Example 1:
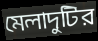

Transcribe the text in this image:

মেলাদুটির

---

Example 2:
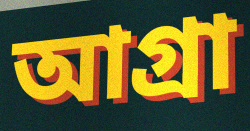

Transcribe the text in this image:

আগ্রা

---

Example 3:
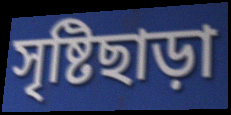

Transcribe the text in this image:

সৃষ্টিছাড়া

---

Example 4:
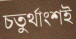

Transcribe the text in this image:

চতুর্থাংশই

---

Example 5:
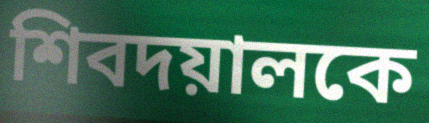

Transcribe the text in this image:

শিবদয়ালকে